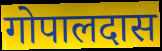
गोपालदास